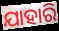
ଯାହାରି